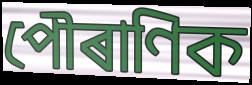
পৌৰাণিক